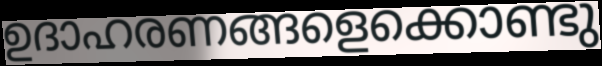
ഉദാഹരണങ്ങളെക്കൊണ്ടു